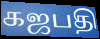
கஜபதி